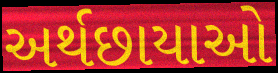
અર્થછાયાઓ